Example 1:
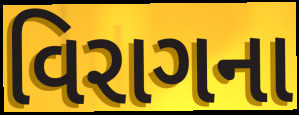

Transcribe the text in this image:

વિરાગના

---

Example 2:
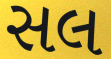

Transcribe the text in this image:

સલ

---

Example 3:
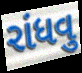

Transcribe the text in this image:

રાંધવુ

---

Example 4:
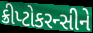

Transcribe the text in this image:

ક્રીપ્ટોકરન્સીને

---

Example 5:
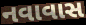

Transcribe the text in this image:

નવાવાસ